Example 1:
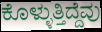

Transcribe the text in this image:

ಕೊಳ್ಳುತ್ತಿದ್ದೆವು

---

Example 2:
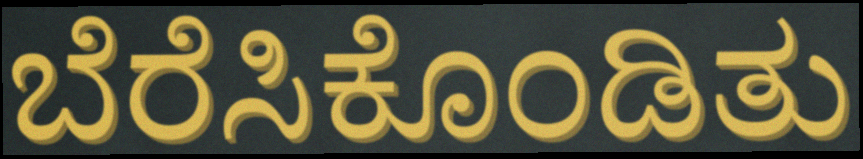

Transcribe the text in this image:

ಬೆರೆಸಿಕೊಂಡಿತು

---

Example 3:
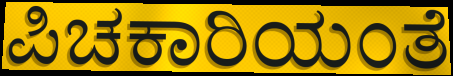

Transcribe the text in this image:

ಪಿಚಕಾರಿಯಂತೆ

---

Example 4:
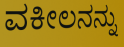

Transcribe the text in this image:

ವಕೀಲನನ್ನು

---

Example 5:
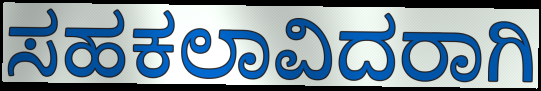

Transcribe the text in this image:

ಸಹಕಲಾವಿದರಾಗಿ